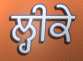
ਲ੍ਹੀਕੇ